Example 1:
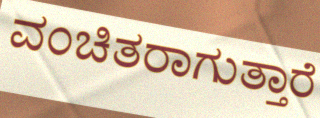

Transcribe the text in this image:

ವಂಚಿತರಾಗುತ್ತಾರೆ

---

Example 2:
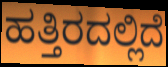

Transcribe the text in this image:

ಹತ್ತಿರದಲ್ಲಿದೆ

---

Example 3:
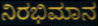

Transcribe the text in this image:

ನಿರಭಿಮಾನ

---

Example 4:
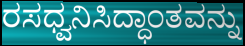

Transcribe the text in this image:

ರಸಧ್ವನಿಸಿದ್ಧಾಂತವನ್ನು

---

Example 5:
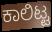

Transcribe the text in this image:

ಕಾಲಿಟ್ಟ